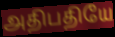
அதிபதியே